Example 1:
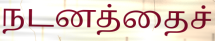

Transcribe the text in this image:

நடனத்தைச்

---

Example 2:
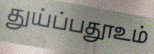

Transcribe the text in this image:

துய்ப்பதூஉம்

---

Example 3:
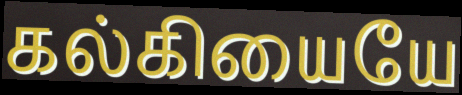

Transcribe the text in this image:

கல்கியையே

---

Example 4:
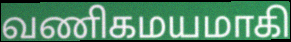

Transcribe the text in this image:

வணிகமயமாகி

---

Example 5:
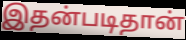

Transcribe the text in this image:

இதன்படிதான்